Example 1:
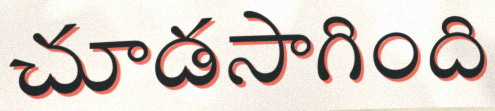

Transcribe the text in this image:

చూడసాగింది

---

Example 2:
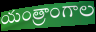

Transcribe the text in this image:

యంత్రాంగాల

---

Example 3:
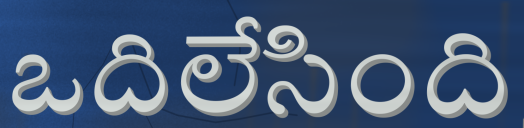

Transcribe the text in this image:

ఒదిలేసింది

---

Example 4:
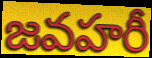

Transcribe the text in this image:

జవహరీ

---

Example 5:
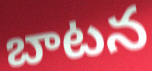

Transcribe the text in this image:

బాటన